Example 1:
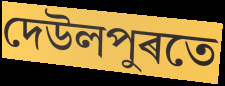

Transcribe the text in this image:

দেউলপুৰতে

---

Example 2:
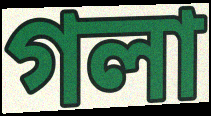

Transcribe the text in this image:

গলা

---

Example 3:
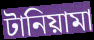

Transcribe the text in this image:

টানিয়ামা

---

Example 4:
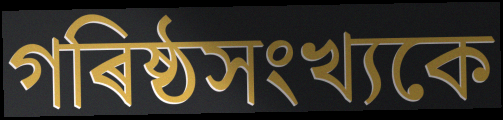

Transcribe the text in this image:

গৰিষ্ঠসংখ্যকে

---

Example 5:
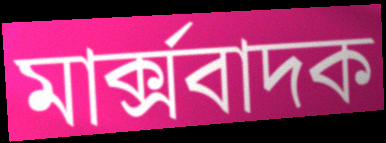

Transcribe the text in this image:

মাৰ্ক্সবাদক